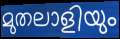
മുതലാളിയും